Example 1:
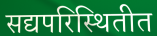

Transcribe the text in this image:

सद्यपरिस्थितीत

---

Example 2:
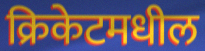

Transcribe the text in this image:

क्रिकेटमधील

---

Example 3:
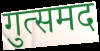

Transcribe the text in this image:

गुत्समद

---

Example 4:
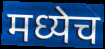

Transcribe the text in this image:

मध्‍येच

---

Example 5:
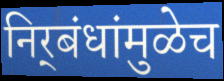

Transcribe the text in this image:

निर्बंधांमुळेच